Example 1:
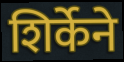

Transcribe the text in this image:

शिर्केने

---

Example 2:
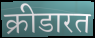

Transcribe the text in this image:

क्रीडारत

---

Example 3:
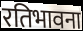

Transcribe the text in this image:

रतिभावना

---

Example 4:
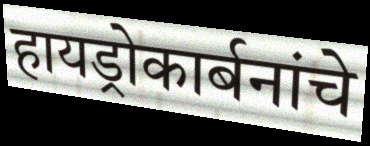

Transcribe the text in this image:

हायड्रोकार्बनांचे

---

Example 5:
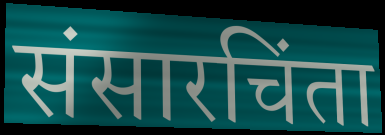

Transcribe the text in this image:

संसारचिंता